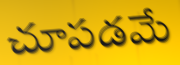
చూపడమే